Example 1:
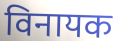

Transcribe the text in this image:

विनायक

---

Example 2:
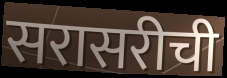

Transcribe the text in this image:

सरासरीची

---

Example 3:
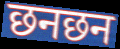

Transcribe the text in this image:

छनछन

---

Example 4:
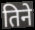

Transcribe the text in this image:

तिने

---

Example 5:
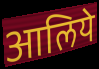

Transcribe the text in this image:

आलिये